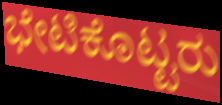
ಭೇಟಿಕೊಟ್ಟರು